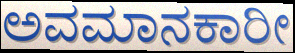
ಅವಮಾನಕಾರೀ